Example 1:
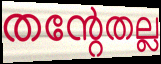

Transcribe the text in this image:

തന്റേതല്ല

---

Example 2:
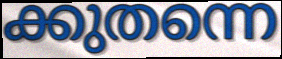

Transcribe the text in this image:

ക്കുതന്നെ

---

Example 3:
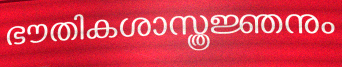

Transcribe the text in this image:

ഭൗതികശാസ്ത്രജ്ഞനും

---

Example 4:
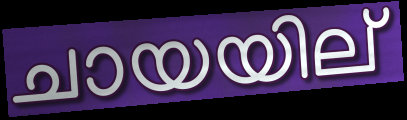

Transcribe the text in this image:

ചായയില്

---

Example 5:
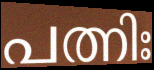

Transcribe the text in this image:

പത്നിഃ